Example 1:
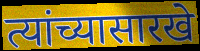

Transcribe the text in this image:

त्यांच्यासारखे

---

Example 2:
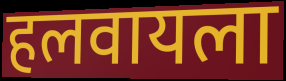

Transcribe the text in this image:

हलवायला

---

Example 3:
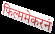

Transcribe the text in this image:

फिल्ममेकरनं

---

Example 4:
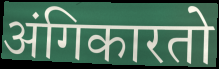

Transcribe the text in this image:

अंगिकारतो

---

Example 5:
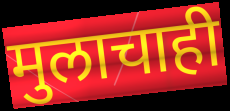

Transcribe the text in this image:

मुलाचाही